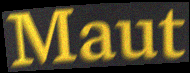
Maut